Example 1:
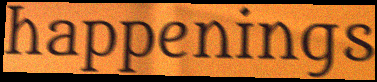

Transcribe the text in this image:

happenings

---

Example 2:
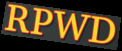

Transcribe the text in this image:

RPWD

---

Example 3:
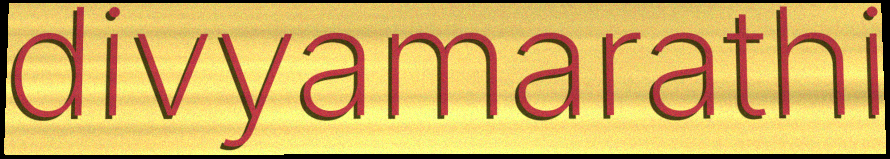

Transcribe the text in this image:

divyamarathi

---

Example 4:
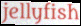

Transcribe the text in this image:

jellyfish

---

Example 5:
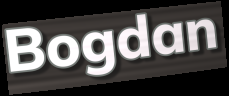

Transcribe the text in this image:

Bogdan